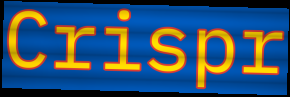
Crispr